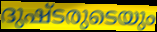
ദുഷ്ടരുടെയും